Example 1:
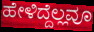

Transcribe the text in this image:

ಹೇಳಿದ್ದೆಲ್ಲವೂ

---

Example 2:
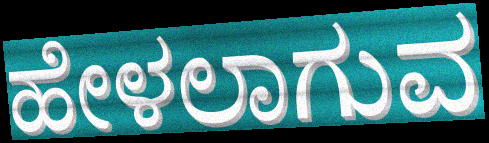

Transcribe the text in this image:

ಹೇಳಲಾಗುವ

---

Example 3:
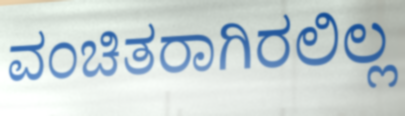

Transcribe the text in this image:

ವಂಚಿತರಾಗಿರಲಿಲ್ಲ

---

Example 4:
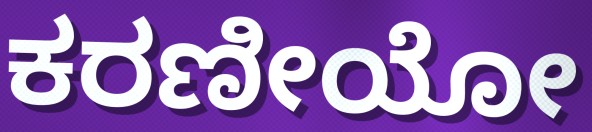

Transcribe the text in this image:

ಕರಣೀಯೋ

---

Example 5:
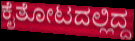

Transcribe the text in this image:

ಕೈತೋಟದಲ್ಲಿದ್ದ